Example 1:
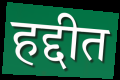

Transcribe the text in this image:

हद्दीत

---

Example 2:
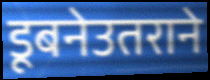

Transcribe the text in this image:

डूबनेउतराने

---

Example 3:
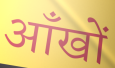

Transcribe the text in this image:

ऑंखों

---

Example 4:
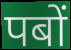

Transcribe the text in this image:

पबों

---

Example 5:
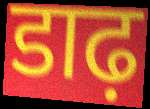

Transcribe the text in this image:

डाढ़